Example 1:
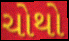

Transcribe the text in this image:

ચોથો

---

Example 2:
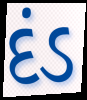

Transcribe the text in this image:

દંડ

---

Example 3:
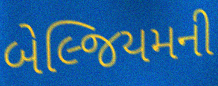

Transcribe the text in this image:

બેલ્જિયમની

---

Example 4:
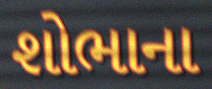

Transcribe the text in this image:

શોભાના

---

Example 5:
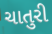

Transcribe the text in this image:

ચાતુરી